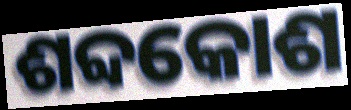
ଶବ୍ଦକୋଶ